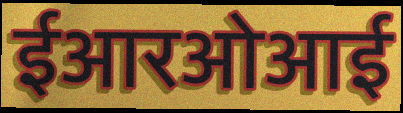
ईआरओआई